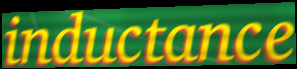
inductance